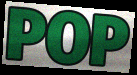
POP